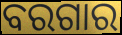
ବରଗାର